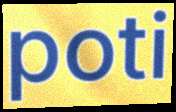
poti